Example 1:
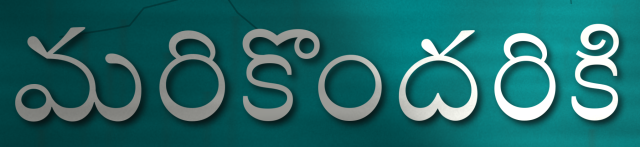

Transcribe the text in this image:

మరికొందరికి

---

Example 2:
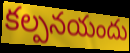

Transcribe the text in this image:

కల్పనయందు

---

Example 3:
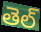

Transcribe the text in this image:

తెల్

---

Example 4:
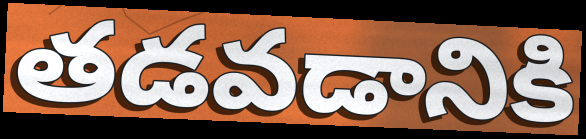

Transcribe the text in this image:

తడవడానికి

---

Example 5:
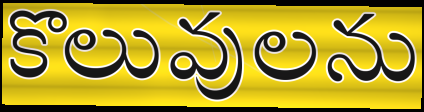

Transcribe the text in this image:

కొలువులను